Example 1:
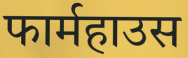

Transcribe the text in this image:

फार्महाउस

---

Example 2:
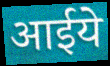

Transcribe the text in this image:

आईये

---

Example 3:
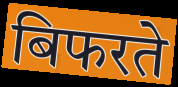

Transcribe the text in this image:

बिफरते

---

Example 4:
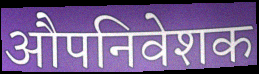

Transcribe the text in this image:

औपनिवेशक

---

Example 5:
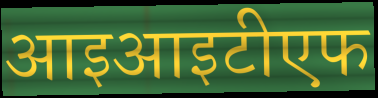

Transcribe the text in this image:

आइआइटीएफ